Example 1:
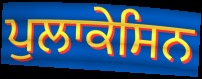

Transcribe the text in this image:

ਪੁਲਾਕੇਸਿਨ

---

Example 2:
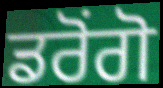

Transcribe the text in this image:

ਡਰੋਂਗੋ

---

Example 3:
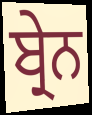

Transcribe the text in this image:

ਬ੍ਰੇਨ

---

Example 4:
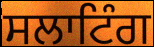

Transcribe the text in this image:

ਸਲਾਟਿੰਗ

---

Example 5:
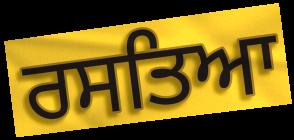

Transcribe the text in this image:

ਰਸਤਿਆ